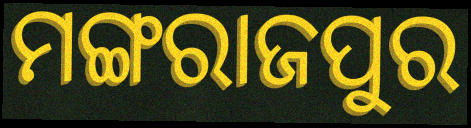
ମଙ୍ଗରାଜପୁର